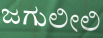
ಜಗುಲೀಲಿ